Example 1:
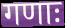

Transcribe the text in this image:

गणाः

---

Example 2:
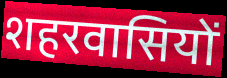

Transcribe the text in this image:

शहरवासियों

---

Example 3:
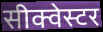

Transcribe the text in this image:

सीक्वेस्टर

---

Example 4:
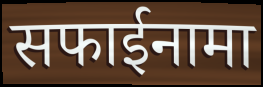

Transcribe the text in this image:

सफाईनामा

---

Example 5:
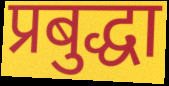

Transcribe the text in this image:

प्रबुद्धा